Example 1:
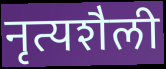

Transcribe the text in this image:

नृत्यशैली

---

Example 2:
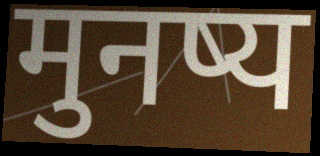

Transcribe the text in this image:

मुनष्य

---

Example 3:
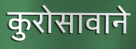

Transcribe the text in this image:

कुरोसावाने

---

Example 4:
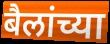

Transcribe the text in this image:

बैलांच्या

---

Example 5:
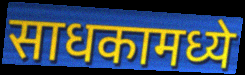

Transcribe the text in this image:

साधकामध्ये